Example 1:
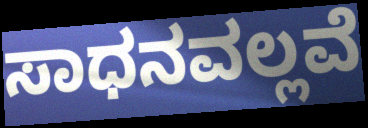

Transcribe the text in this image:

ಸಾಧನವಲ್ಲವೆ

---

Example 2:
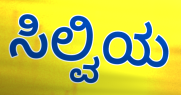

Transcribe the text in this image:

ಸಿಲ್ವಿಯ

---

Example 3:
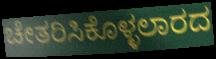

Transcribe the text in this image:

ಚೇತರಿಸಿಕೊಳ್ಳಲಾರದ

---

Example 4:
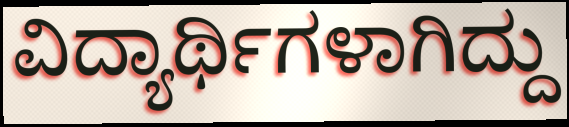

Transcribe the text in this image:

ವಿದ್ಯಾರ್ಥಿಗಳಾಗಿದ್ದು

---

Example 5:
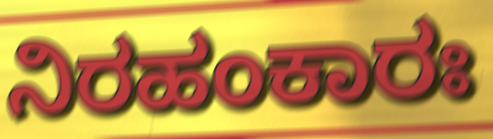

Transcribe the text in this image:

ನಿರಹಂಕಾರಃ